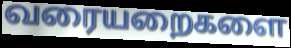
வரையறைகளை